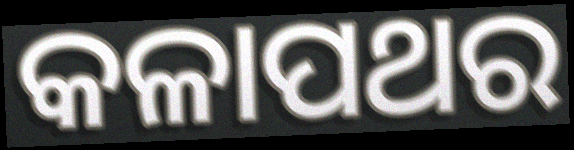
କଳାପଥର